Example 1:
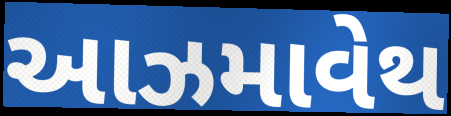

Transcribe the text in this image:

આઝમાવેથ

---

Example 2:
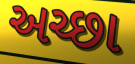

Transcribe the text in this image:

અચ્છા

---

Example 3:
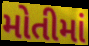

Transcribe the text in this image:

મોતીમાં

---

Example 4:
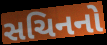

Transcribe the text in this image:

સચિનનો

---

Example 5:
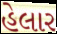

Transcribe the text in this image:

હેલાર